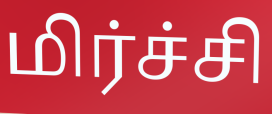
மிர்ச்சி